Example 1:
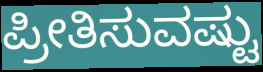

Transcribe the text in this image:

ಪ್ರೀತಿಸುವಷ್ಟು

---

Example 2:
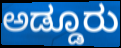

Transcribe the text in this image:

ಅಡ್ಡೂರು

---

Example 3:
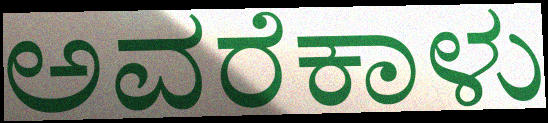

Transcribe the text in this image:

ಅವರೆಕಾಳು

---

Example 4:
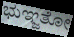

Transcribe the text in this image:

ಭುಞ್ಜತೋ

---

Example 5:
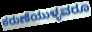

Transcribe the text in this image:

ಕರುಣೆಯುಳ್ಳವರೂ